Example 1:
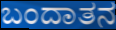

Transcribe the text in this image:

ಬಂದಾತನ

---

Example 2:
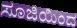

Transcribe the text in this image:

ಸೂಜಿಯಿಂದ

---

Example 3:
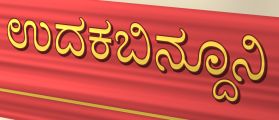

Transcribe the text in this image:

ಉದಕಬಿನ್ದೂನಿ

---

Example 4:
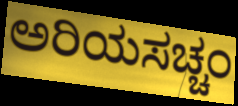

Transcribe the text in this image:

ಅರಿಯಸಚ್ಚಂ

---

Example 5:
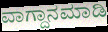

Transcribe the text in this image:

ವಾಗ್ದಾನಮಾಡಿ